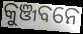
କୁଞ୍ଜବନେ